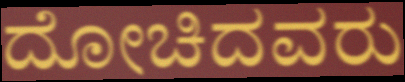
ದೋಚಿದವರು